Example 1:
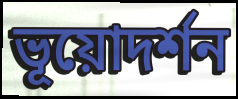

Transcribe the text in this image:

ভূয়োদর্শন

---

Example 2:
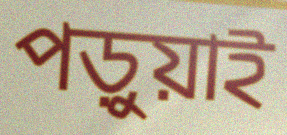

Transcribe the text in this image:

পড়ুয়াই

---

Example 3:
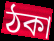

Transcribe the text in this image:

ঠকা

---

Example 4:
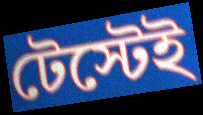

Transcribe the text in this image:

টেস্টেই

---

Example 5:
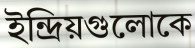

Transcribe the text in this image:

ইন্দ্রিয়গুলোকে